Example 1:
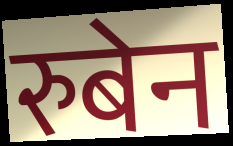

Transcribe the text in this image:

रुबेन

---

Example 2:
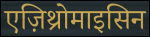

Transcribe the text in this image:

एज़िथ्रोमाइसिन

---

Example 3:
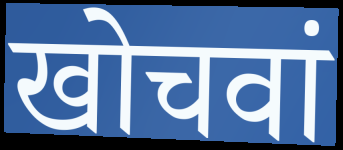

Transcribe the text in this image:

खोचवां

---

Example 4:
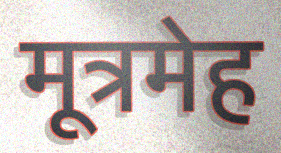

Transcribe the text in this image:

मूत्रमेह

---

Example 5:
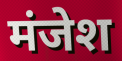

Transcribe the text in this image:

मंजेश